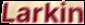
Larkin